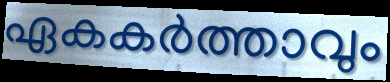
ഏകകർത്താവും